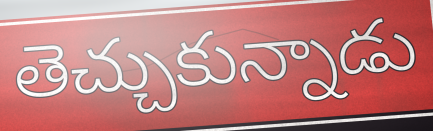
తెచ్చుకున్నాడు